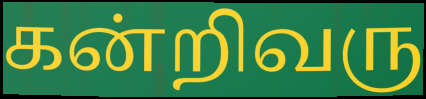
கன்றிவரு